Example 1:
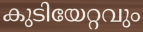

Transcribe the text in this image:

കുടിയേറ്റവും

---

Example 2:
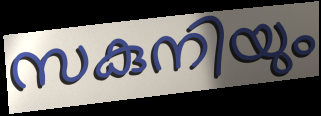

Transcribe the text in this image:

സകുനിയും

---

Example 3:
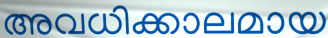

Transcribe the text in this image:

അവധിക്കാലമായ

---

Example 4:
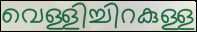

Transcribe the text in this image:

വെള്ളിച്ചിറകുള്ള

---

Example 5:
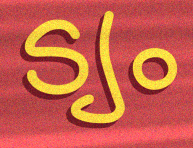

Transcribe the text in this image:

ട്യം